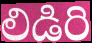
లిడిరి